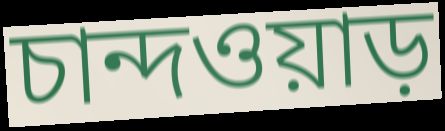
চান্দওয়াড়